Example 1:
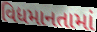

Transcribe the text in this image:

વિદ્યમાનતામાં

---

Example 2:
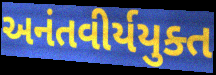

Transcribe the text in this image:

અનંતવીર્યયુક્ત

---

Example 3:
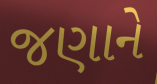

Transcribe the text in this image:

જણાને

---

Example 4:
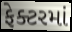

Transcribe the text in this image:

ફેક્ટરમાં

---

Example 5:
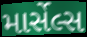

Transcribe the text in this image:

માર્સેલ્સ